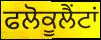
ਫਲੋਕੂਲੈਂਟਾਂ